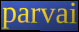
parvai